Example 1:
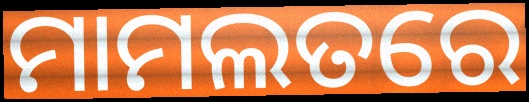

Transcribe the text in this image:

ମାମଲତରେ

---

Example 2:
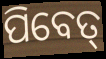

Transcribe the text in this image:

ପିବେତ୍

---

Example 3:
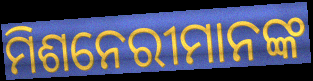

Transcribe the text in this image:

ମିଶନେରୀମାନଙ୍କ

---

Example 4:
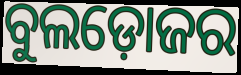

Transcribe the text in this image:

ବୁଲଡ଼ୋଜର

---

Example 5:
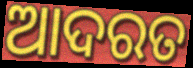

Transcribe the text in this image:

ଆଦରତ